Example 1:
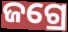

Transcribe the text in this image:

ଜଗ୍ରେ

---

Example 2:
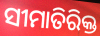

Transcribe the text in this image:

ସୀମାତିରିକ୍ତ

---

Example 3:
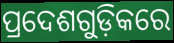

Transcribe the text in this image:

ପ୍ରଦେଶଗୁଡ଼ିକରେ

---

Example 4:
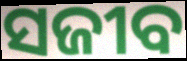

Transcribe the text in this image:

ସଜୀବ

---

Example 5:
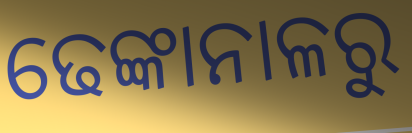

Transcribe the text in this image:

ଢେଙ୍କାନାଳରୁ